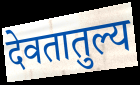
देवतातुल्य